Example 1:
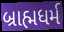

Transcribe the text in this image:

બ્રાહ્મધર્મ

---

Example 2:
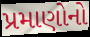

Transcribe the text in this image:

પ્રમાણોનો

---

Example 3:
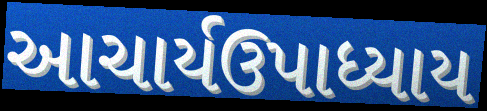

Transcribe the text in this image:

આચાર્યઉપાધ્યાય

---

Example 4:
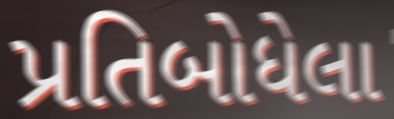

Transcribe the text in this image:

પ્રતિબોધેલા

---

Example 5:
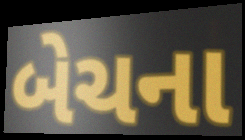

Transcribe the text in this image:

બેચના